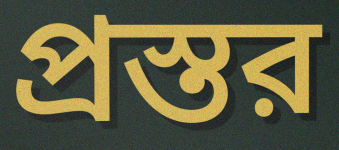
প্রস্তর